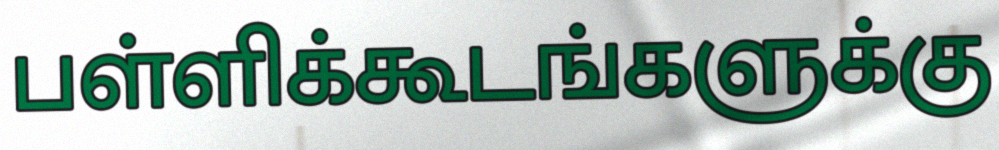
பள்ளிக்கூடங்களுக்கு